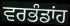
ਵਰਭੰਡਾਂਹ